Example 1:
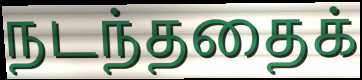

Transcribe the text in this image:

நடந்ததைக்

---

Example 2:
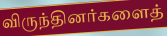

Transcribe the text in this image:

விருந்தினர்களைத்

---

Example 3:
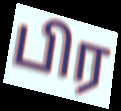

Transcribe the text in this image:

பிர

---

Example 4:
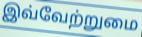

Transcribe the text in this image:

இவ்வேற்றுமை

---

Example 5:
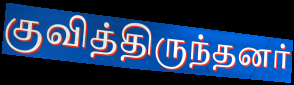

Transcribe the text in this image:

குவித்திருந்தனர்